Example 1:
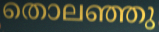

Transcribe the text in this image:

തൊലഞ്ഞു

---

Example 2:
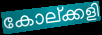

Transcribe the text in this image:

കോല്ക്കളി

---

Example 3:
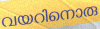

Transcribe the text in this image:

വയറിനൊരു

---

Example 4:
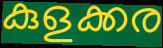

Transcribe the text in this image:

കുളക്കര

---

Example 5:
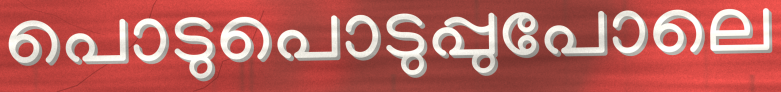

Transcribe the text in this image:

പൊടുപൊടുപ്പുപോലെ